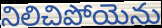
నిలిచిపోయెను